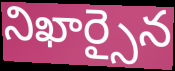
నిఖార్సైన